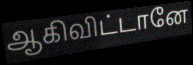
ஆகிவிட்டானே